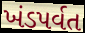
ખંડપર્વત